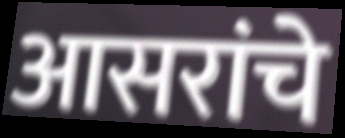
आसरांचे